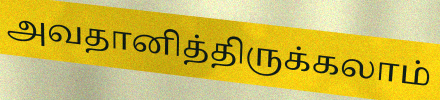
அவதானித்திருக்கலாம்